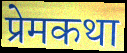
प्रेमकथा